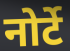
नोर्टे